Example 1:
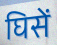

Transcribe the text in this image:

घिसें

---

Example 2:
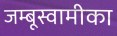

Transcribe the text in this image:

जम्बूस्वामीका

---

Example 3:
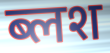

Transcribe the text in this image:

ब्लश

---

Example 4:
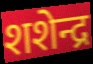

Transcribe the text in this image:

शशेन्द्र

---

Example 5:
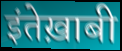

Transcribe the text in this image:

इंतेख़ाबी